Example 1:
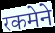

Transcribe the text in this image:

रकमेने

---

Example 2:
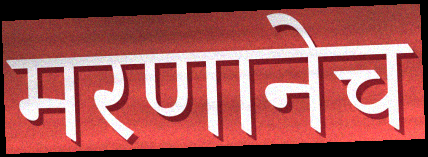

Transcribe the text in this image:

मरणानेच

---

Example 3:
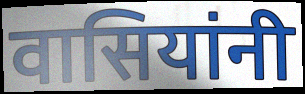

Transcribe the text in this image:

वासियांनी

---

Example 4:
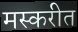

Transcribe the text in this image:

मस्करीत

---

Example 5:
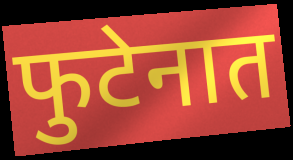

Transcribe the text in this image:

फुटेनात